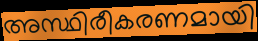
അസ്ഥിരീകരണമായി